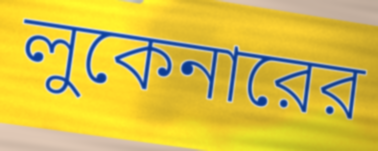
লুকেনারের